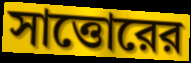
সাত্তোরের